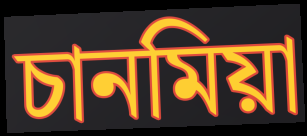
চানমিয়া